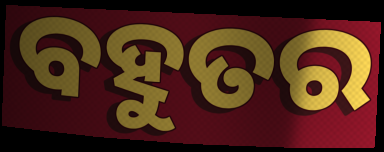
ବହୁତର